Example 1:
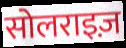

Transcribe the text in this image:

सोलराइज़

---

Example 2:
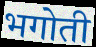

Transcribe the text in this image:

भगोती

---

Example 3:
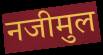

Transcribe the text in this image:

नजीमुल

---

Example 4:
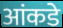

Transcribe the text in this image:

आंकडे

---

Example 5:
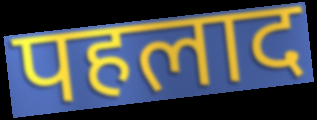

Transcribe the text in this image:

पहलाद